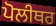
ਪੋਲੀਥਰ